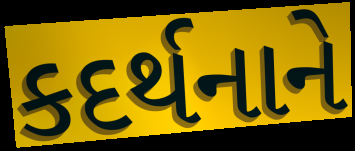
કદર્થનાને